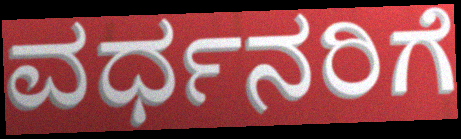
ವರ್ಧನರಿಗೆ